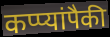
कप्प्यांपैकी